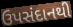
ઉપસંદાનથી